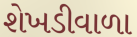
શેખડીવાળા